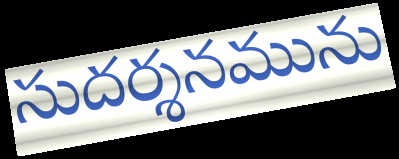
సుదర్శనమును